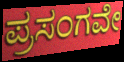
ಪ್ರಸಂಗವೇ